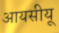
आयसीयू